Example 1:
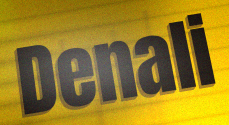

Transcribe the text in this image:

Denali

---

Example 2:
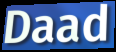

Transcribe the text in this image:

Daad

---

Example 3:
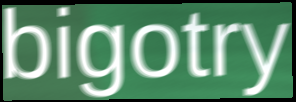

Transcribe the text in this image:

bigotry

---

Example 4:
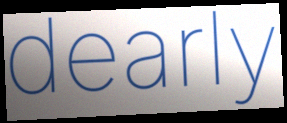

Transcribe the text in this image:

dearly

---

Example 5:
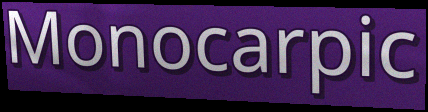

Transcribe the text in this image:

Monocarpic